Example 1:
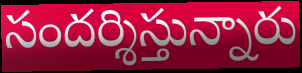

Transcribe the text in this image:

సందర్శిస్తున్నారు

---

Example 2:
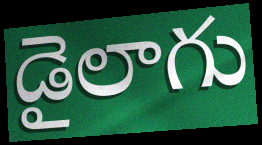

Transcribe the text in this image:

డైలాగు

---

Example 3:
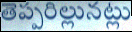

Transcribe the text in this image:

తెప్పరిల్లునట్లు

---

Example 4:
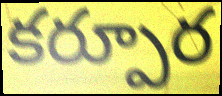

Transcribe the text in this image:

కర్పూర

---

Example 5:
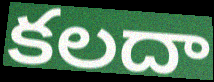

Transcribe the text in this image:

కలదా